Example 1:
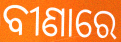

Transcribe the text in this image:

ବୀଣାରେ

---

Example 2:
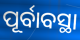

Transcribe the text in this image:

ପୂର୍ବାବସ୍ଥା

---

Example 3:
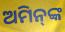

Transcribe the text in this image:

ଅମିନ୍‌ଙ୍କ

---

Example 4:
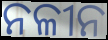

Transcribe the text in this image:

ନଳୀନ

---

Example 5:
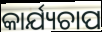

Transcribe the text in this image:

କାର୍ଯ୍ୟଚାପ